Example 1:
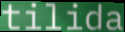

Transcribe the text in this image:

tilida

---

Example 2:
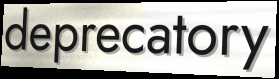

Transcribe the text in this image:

deprecatory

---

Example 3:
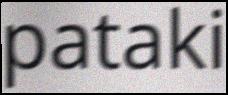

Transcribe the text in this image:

pataki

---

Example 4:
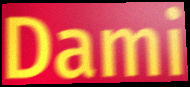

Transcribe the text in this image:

Dami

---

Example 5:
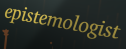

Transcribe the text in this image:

epistemologist